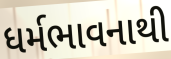
ધર્મભાવનાથી